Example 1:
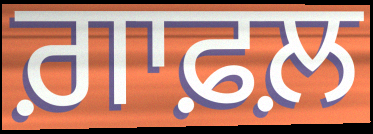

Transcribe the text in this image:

ਗ਼ਾਫ਼ਲ਼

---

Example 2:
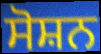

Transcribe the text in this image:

ਸੋਸ਼ਨ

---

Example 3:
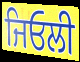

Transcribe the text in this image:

ਜਿਓਲੀ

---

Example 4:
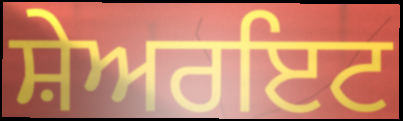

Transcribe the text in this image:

ਸ਼ੇਅਰਇਟ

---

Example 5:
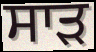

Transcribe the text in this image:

ਸਾਡ਼